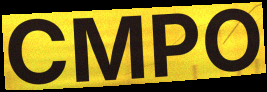
CMPO